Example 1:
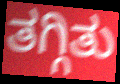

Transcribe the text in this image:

ತಗ್ಗಿತು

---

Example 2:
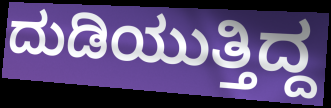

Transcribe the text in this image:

ದುಡಿಯುತ್ತಿದ್ದ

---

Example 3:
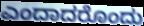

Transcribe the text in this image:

ಎಂದಾದರೊಂದು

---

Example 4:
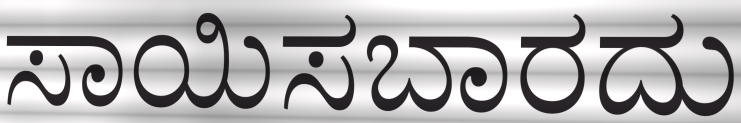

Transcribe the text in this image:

ಸಾಯಿಸಬಾರದು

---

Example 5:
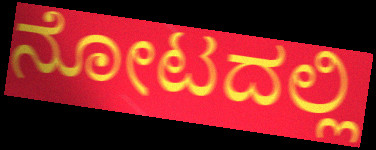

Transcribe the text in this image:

ನೋಟದಲ್ಲಿ